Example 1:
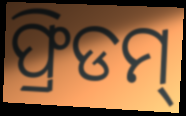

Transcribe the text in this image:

ଫ୍ରିଡମ୍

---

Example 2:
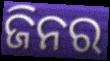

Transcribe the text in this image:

ଜିନର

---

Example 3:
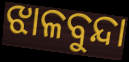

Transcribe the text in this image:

ଝାଳବୁନ୍ଦା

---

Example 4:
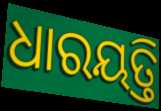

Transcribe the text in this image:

ଧାରୟତ୍ତି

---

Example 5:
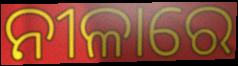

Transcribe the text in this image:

ନୀଳାରେ